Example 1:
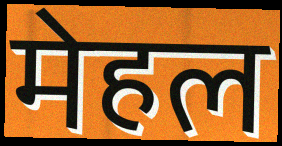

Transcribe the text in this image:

मेहल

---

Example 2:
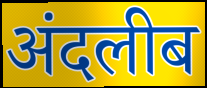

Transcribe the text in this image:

अंदलीब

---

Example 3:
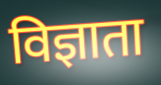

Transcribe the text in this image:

विज्ञाता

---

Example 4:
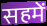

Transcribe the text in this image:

सहमें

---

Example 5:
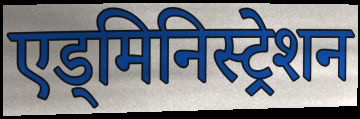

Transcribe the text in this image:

एड्मिनिस्ट्रेशन